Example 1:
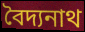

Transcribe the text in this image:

বৈদ্যনাথ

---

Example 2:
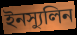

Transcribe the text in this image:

ইনস্যুলিন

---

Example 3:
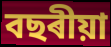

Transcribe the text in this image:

বছৰীয়া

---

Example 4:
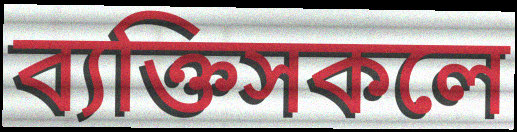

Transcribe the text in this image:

ব্যক্তিসকলে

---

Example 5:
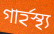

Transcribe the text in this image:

গাৰ্হস্থ্য